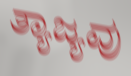
ತ್ಯಾಜ್ಯವು